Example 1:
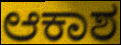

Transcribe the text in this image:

ಆಕಾಶ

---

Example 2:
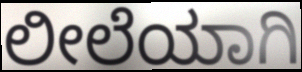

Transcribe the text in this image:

ಲೀಲೆಯಾಗಿ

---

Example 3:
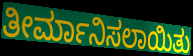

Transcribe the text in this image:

ತೀರ್ಮಾನಿಸಲಾಯಿತು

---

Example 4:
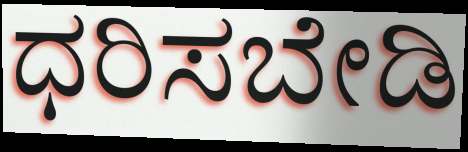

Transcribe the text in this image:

ಧರಿಸಬೇಡಿ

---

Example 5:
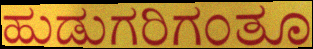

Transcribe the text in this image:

ಹುಡುಗರಿಗಂತೂ